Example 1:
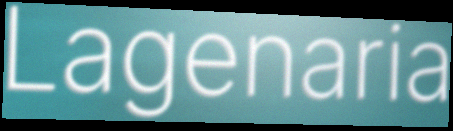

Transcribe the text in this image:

Lagenaria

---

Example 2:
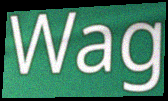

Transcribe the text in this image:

Wag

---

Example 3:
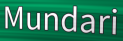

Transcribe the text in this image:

Mundari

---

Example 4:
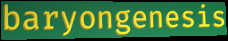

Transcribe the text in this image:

baryongenesis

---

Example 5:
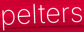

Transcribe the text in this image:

pelters